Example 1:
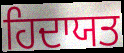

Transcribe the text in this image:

ਹਿਦਾਯਤ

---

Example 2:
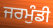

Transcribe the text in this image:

ਜਰਮੁੰਡੀ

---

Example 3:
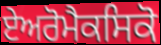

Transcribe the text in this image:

ਏਅਰੋਮੈਕਸਿਕੋ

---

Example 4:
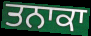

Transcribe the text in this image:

ਤਨਾਕਾ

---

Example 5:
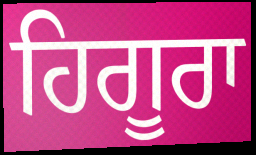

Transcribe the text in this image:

ਹਿਗੂਰਾ